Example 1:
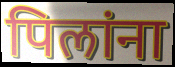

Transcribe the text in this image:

पिलांना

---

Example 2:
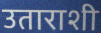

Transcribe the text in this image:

उताराशी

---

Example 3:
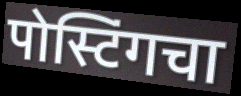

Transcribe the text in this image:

पोस्टिंगचा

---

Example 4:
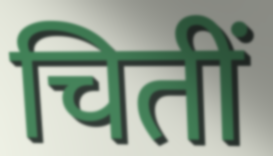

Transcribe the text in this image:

चितीं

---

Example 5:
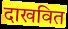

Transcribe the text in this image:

दाखवित